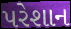
પરેશાન